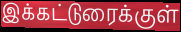
இக்கட்டுரைக்குள்